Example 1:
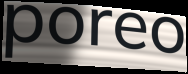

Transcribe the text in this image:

poreo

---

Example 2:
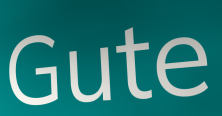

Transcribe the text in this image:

Gute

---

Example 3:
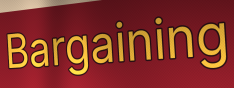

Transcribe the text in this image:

Bargaining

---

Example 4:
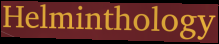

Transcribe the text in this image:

Helminthology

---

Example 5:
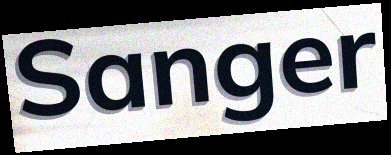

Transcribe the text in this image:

Sanger